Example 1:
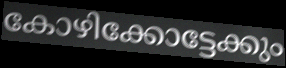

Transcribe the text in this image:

കോഴിക്കോട്ടേക്കും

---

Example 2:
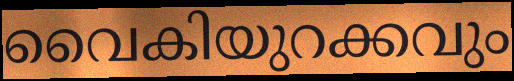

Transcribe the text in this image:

വൈകിയുറക്കവും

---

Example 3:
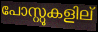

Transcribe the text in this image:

പോസ്റ്റുകളില്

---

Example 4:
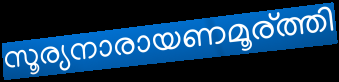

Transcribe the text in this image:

സൂര്യനാരായണമൂര്ത്തി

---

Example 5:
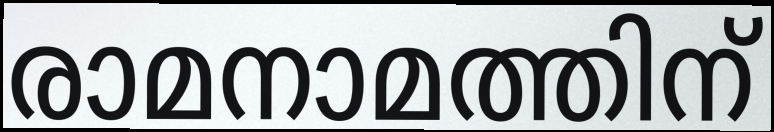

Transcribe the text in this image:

രാമനാമത്തിന്